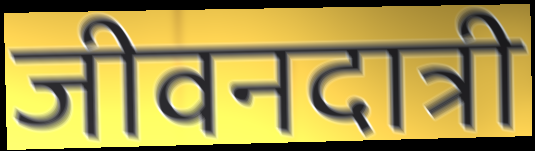
जीवनदात्री